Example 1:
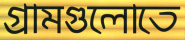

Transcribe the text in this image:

গ্রামগুলোতে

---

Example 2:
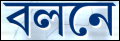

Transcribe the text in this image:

বলনে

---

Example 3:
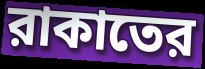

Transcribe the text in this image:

রাকাতের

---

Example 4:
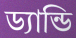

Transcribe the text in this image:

ড্যান্ডি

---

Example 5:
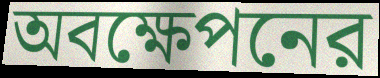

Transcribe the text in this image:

অবক্ষেপনের